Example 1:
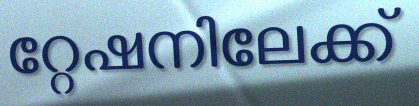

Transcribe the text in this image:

റ്റേഷനിലേക്ക്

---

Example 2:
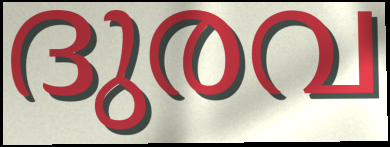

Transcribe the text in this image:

ദുരവ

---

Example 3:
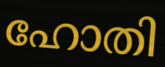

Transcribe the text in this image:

ഹോതി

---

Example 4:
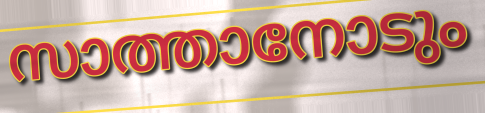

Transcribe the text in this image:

സാത്താനോടും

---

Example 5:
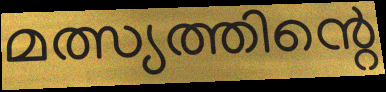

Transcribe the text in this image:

മത്സ്യത്തിന്റെ